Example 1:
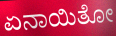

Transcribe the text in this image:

ಏನಾಯಿತೋ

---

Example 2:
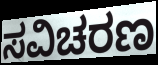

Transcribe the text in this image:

ಸವಿಚರಣ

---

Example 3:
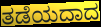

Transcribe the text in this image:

ತಡೆಯದಾದ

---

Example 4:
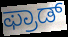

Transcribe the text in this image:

ಫ್ರಾಡ್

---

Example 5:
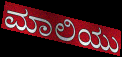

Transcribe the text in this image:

ಮಾಲಿಯು